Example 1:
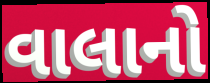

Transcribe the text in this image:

વાલાનો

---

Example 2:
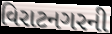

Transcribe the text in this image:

વિરાટનગરની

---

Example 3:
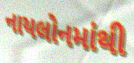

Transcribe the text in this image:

નાયલોનમાંથી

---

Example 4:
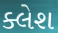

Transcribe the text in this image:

ક્લેશ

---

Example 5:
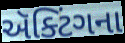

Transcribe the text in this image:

ઍક્ટિંગના